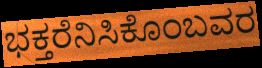
ಭಕ್ತರೆನಿಸಿಕೊಂಬವರ